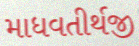
માધવતીર્થજી